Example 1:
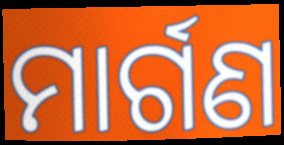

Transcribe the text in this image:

ମାର୍ଗଣ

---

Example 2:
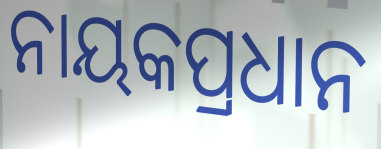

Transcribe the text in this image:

ନାୟକପ୍ରଧାନ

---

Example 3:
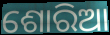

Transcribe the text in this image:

ଶୋରିଆ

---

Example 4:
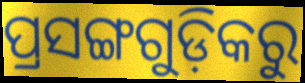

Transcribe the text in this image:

ପ୍ରସଙ୍ଗଗୁଡ଼ିକରୁ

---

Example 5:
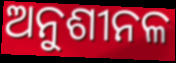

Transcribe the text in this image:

ଅନୁଶୀନଳ